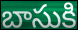
బాసుకి